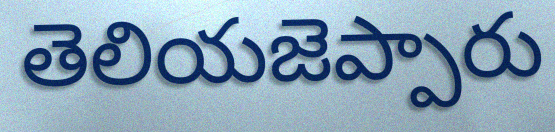
తెలియజెప్పారు